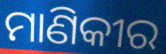
ମାଣିକୀର